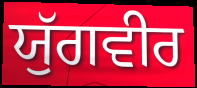
ਯੁੱਗਵੀਰ